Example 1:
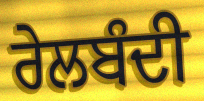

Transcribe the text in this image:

ਰੇਲਬੰਦੀ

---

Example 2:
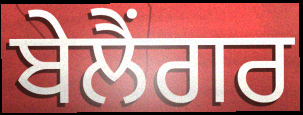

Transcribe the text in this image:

ਬੇਲੈਂਗਰ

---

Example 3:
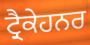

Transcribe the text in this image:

ਟ੍ਰੈਕੇਹਨਰ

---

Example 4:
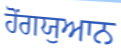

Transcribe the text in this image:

ਹੋਂਗਯੁਆਨ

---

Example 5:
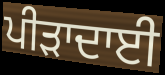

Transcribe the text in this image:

ਪੀੜਾਦਾਈ